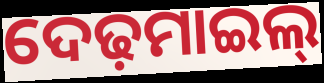
ଦେଢ଼ମାଇଲ୍